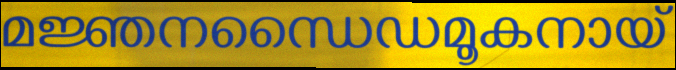
മജ്ഞനന്ധൈഡമൂകനായ്